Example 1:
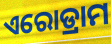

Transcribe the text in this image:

ଏରୋଡ୍ରାମ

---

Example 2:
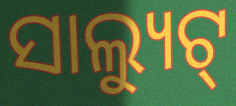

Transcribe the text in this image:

ସାଲ୍ୟୁଟ୍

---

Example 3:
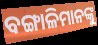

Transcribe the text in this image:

ବଙ୍ଗାଳିମାନଙ୍କୁ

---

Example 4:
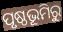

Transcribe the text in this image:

ପୃଷ୍ଠଭୂମିରୁ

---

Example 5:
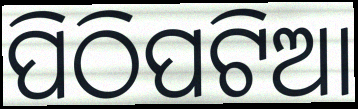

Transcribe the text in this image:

ପିଠିପଟିଆ